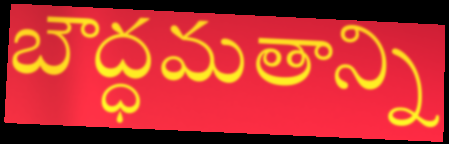
బౌద్ధమతాన్ని